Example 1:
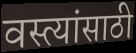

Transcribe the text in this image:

वस्त्यांसाठी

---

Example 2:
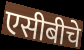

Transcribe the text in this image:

एसीबीचे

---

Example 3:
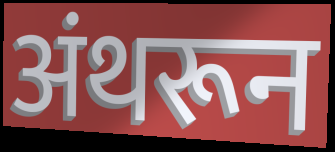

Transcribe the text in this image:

अंथरून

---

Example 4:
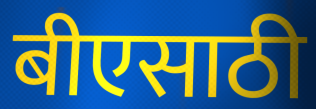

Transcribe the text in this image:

बीएसाठी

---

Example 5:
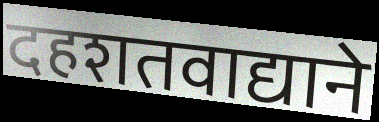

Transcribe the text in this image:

दहशतवाद्याने